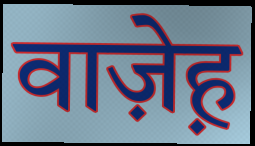
वाज़ेह़